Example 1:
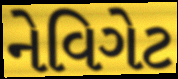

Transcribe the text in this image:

નેવિગેટ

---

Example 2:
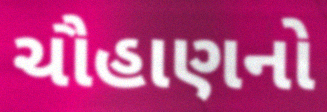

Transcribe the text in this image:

ચૌહાણનો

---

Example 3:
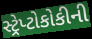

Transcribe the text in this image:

સ્ટ્રેપ્ટોકોકીની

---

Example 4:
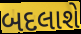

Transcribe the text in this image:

બદલાશે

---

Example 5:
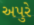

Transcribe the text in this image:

અપુરે